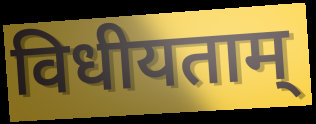
विधीयताम्